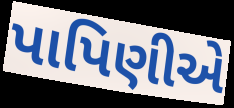
પાપિણીએ